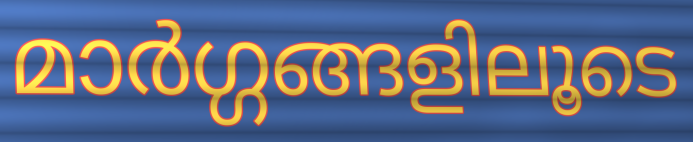
മാർഗ്ഗങ്ങളിലൂടെ